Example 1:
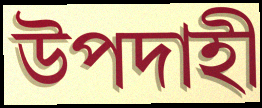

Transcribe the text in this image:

উপদাহী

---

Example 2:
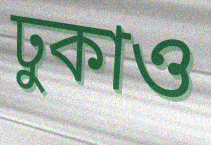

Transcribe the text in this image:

ঢুকাও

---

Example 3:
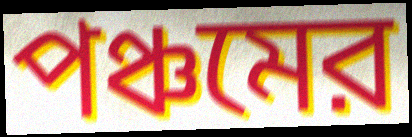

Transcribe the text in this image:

পঞ্চমের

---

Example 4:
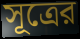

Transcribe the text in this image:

সূত্রের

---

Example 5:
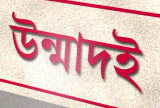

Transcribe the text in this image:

উন্মাদই